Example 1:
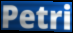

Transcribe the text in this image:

Petri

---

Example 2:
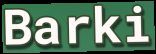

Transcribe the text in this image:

Barki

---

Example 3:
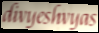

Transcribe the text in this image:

divyeshvyas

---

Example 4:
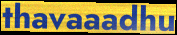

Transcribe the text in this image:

thavaaadhu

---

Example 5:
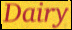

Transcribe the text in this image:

Dairy